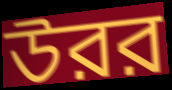
উরর